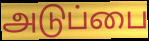
அடுப்பை